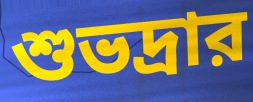
শুভদ্রার